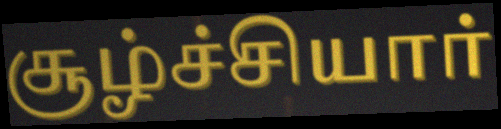
சூழ்ச்சியார்